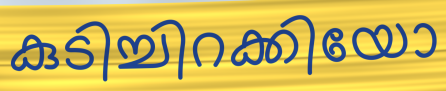
കുടിച്ചിറക്കിയോ